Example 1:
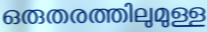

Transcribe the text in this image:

ഒരുതരത്തിലുമുള്ള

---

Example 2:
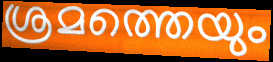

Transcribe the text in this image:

ശ്രമത്തെയും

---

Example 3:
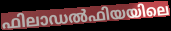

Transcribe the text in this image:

ഫിലാഡൽഫിയയിലെ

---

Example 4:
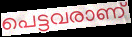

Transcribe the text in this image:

പെട്ടവരാണ്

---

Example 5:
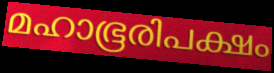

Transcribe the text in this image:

മഹാഭൂരിപക്ഷം